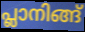
പ്ലാനിങ്ങ്